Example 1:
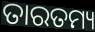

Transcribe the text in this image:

ତାରତମ୍ୟ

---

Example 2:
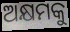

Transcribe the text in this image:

ଅକ୍ଷମକୁ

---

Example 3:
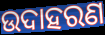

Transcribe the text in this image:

ଉଦାହରଣ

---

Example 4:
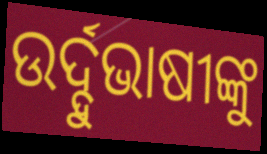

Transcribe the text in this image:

ଉର୍ଦ୍ଦୁଭାଷୀଙ୍କୁ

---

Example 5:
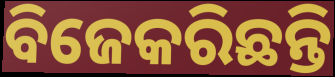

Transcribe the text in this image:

ବିଜେକରିଛନ୍ତି